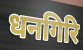
धनगिरि